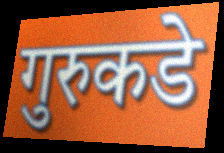
गुरुकडे